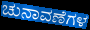
ಚುನಾವಣೆಗಳ